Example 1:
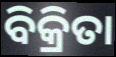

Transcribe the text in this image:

ବିକ୍ରିତା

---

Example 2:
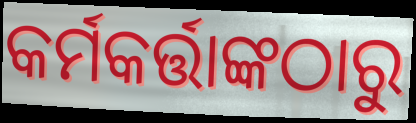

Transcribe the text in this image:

କର୍ମକର୍ତ୍ତାଙ୍କଠାରୁ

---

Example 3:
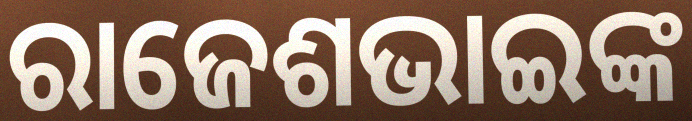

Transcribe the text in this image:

ରାଜେଶଭାଇଙ୍କ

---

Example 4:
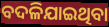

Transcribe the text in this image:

ବଦଳିଯାଇଥିବା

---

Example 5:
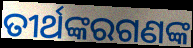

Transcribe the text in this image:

ତୀର୍ଥଙ୍କରଗଣଙ୍କ